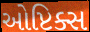
ઓપ્ટિક્સ